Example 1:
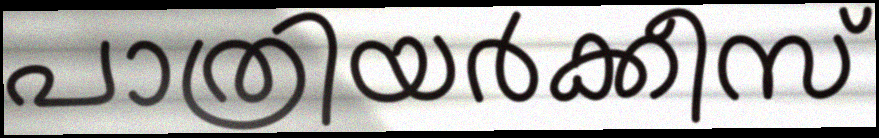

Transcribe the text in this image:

പാത്രിയർക്കീസ്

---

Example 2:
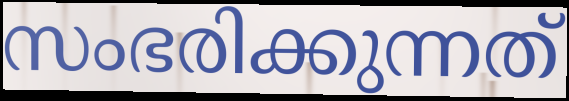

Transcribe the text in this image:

സംഭരിക്കുന്നത്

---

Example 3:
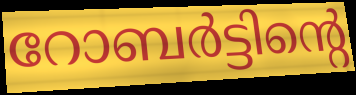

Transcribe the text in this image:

റോബർട്ടിന്റെ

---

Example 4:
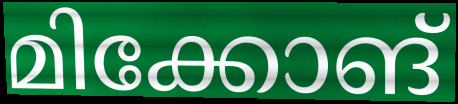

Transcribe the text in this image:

മിക്കോങ്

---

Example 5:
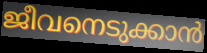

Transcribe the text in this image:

ജീവനെടുക്കാൻ